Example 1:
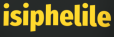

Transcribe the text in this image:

isiphelile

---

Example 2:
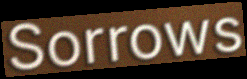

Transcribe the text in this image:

Sorrows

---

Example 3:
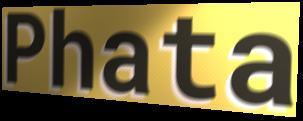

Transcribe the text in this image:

Phata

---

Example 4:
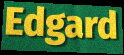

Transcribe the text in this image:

Edgard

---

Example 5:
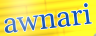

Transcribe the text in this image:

awnari